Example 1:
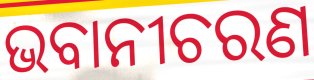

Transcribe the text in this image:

ଭବାନୀଚରଣ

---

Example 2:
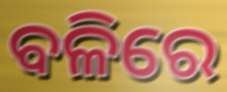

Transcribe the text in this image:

ବଳିରେ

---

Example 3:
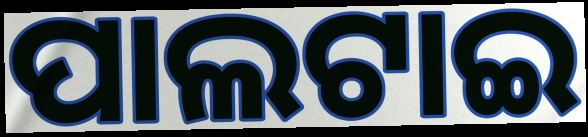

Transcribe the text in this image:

ପାଲଟାଇ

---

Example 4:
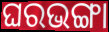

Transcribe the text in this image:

ଘରଭଙ୍ଗା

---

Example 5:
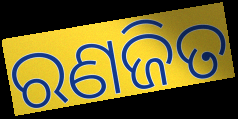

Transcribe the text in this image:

ରଣଜିତ